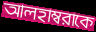
আলহাম্বরাকে